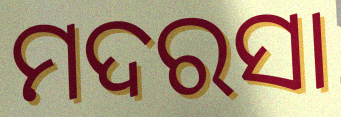
ମଦରସା